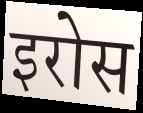
इरोस